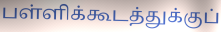
பள்ளிக்கூடத்துக்குப்